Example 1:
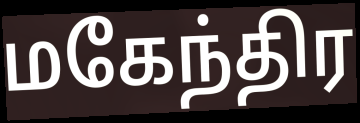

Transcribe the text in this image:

மகேந்திர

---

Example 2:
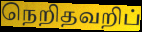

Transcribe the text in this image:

நெறிதவறிப்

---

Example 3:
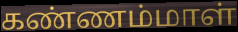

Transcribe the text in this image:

கண்ணம்மாள்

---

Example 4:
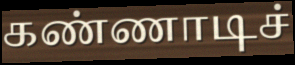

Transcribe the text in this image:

கண்ணாடிச்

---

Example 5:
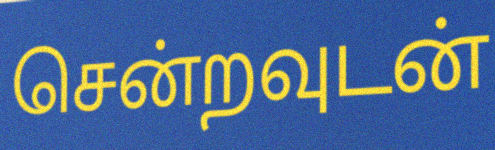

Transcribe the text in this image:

சென்றவுடன்